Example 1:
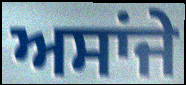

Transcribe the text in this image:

ਅਸਾਂਜੇ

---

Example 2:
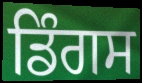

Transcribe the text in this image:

ਡਿੰਗਸ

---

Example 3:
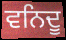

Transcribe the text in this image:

ਵਨਿਦੂ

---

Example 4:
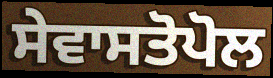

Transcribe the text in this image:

ਸੇਵਾਸਤੋਪੋਲ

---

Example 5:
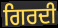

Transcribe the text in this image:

ਗਿਰਦੀ